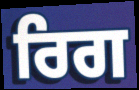
ਰਿਗ